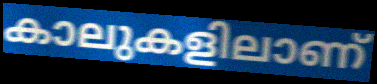
കാലുകളിലാണ്